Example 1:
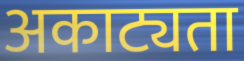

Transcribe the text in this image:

अकाट्यता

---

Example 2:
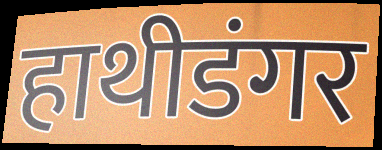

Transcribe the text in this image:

हाथीडंगर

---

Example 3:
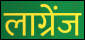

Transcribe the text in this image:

लाग्रेंज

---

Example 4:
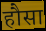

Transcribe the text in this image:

हौसा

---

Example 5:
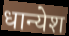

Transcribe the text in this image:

धान्येश